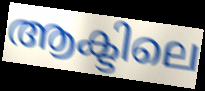
ആക്ടിലെ